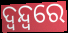
ଦ୍ୱନ୍ଦ୍ବରେ